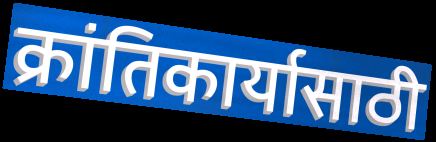
क्रांतिकार्यासाठी